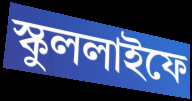
স্কুললাইফে